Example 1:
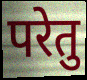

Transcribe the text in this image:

परेतु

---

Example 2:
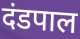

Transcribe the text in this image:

दंडपाल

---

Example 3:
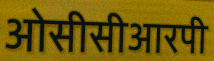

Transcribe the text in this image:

ओसीसीआरपी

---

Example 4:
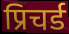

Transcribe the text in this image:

प्रिचर्ड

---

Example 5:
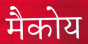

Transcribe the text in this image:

मैकोय